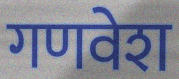
गणवेश